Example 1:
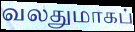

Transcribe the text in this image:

வலதுமாகப்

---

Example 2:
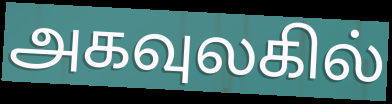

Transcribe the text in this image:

அகவுலகில்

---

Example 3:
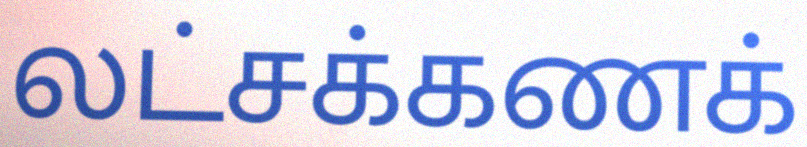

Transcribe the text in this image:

லட்சக்கணக்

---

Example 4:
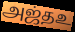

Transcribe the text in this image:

அஜ்தஉ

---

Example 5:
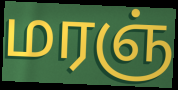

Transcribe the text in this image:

மரஞ்